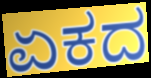
ಏಕದ